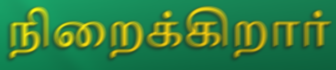
நிறைக்கிறார்